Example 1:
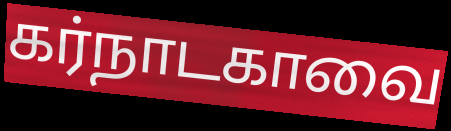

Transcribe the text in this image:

கர்நாடகாவை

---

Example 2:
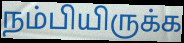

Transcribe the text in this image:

நம்பியிருக்க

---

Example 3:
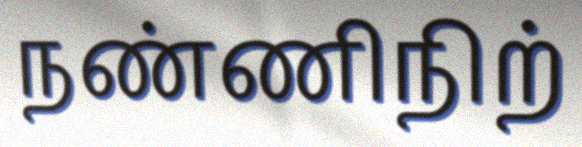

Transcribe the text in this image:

நண்ணிநிற்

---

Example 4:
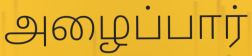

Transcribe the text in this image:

அழைப்பார்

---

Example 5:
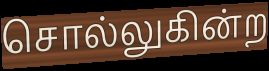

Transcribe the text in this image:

சொல்லுகின்ற